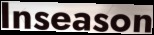
Inseason